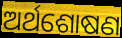
ଅର୍ଥଶୋଷଣ